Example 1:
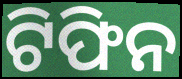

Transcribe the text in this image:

ଟିଫିନ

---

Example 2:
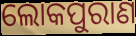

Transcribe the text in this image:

ଲୋକପୁରାଣ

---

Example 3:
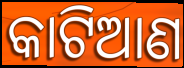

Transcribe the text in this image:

କାଟିଆଣ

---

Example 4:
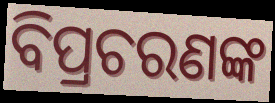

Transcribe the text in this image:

ବିପ୍ରଚରଣଙ୍କ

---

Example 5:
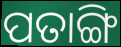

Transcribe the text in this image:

ପତାଙ୍ଗି